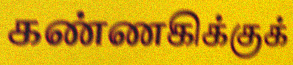
கண்ணகிக்குக்